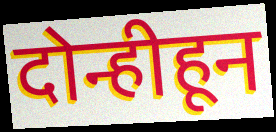
दोन्हीहून